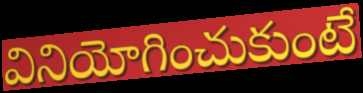
వినియోగించుకుంటే